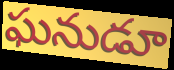
ఘనుడూ